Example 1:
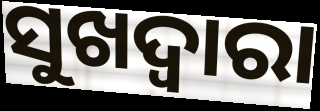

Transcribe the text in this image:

ସୁଖଦ୍ଵାରା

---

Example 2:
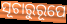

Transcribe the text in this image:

ସୂଚାରୁରୂପେ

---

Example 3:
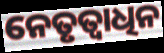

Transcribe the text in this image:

ନେତୃତ୍ୱାଧିନ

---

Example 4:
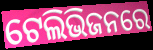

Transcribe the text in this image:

ଟେଲିଭିଜନରେ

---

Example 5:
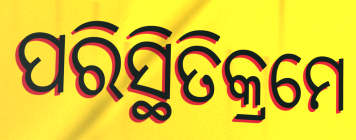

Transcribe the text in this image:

ପରିସ୍ଥିତିକ୍ରମେ